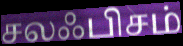
சலஃபிசம்